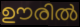
ഊരിൽ